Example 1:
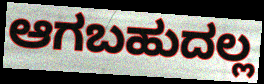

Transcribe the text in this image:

ಆಗಬಹುದಲ್ಲ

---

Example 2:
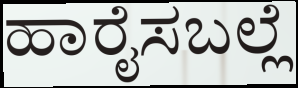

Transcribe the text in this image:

ಹಾರೈಸಬಲ್ಲೆ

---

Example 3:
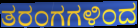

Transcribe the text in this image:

ತರಂಗಗಳಿಂದ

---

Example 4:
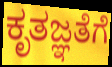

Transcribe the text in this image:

ಕೃತಜ್ಞತೆಗೆ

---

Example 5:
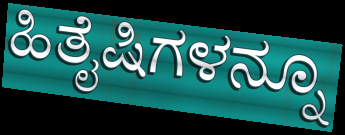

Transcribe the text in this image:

ಹಿತೈಷಿಗಳನ್ನೂ